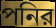
পনির